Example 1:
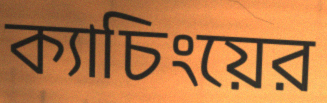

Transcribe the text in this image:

ক্যাচিংয়ের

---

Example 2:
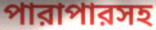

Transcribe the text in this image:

পারাপারসহ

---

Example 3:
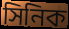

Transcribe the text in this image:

সিনিক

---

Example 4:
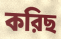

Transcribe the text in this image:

করিছ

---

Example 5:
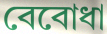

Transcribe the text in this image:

বেবোধা